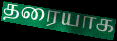
தரையாக